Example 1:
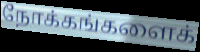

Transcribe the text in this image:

நோக்கங்களைக்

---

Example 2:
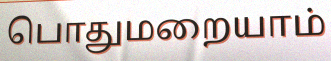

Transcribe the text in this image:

பொதுமறையாம்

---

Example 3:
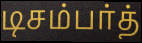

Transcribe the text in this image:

டிசம்பர்த்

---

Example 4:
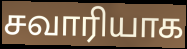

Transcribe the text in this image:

சவாரியாக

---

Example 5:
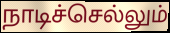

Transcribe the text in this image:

நாடிச்செல்லும்